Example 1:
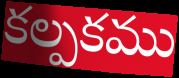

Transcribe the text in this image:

కల్పకము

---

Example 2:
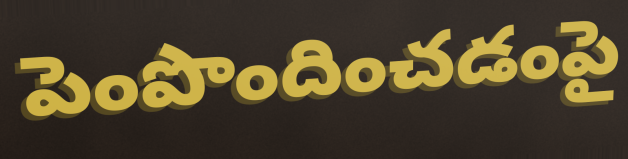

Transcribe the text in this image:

పెంపొందించడంపై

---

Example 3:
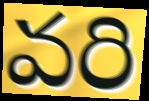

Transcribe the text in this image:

వరి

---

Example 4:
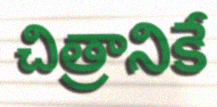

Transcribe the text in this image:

చిత్రానికే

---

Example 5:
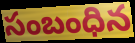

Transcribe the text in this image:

సంబంధిన